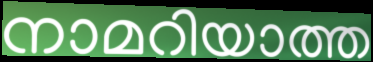
നാമറിയാത്ത